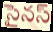
సైనస్